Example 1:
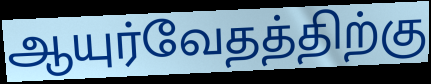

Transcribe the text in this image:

ஆயுர்வேதத்திற்கு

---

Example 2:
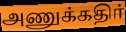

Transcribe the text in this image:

அணுக்கதிர்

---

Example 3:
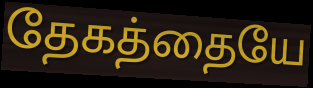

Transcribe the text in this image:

தேகத்தையே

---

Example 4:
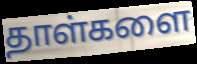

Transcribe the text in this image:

தாள்களை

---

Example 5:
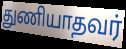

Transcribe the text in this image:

துணியாதவர்